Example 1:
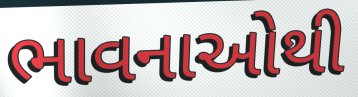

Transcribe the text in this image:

ભાવનાઓથી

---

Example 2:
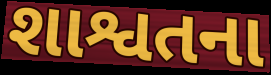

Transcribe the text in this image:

શાશ્વતના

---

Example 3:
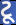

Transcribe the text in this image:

ટૂ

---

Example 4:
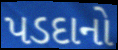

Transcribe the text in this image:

પડદાનો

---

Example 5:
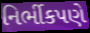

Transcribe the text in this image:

નિર્ભીકપણે